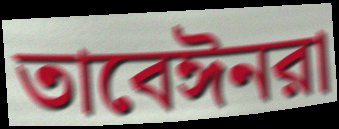
তাবেঈনরা